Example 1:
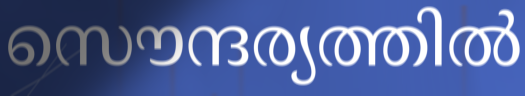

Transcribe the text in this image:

സൌന്ദര്യത്തിൽ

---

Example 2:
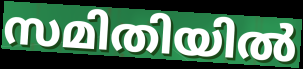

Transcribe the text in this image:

സമിതിയിൽ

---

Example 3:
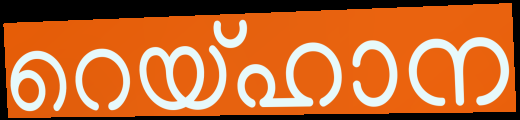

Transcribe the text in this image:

റെയ്ഹാന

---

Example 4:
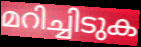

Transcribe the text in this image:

മറിച്ചിടുക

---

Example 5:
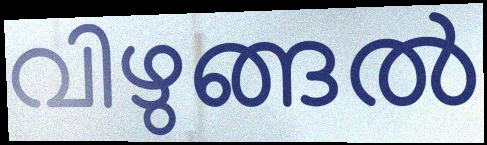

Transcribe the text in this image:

വിഴുങ്ങൽ